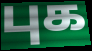
புக